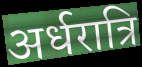
अर्धरात्रि